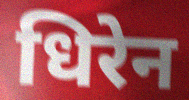
धिरेन